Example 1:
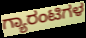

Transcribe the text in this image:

ಗ್ಯಾರಂಟಿಗಳ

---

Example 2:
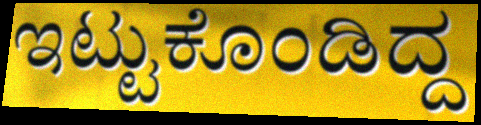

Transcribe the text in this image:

ಇಟ್ಟುಕೊಂಡಿದ್ದ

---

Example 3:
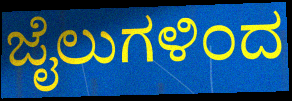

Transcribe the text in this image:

ಜೈಲುಗಳಿಂದ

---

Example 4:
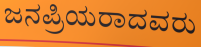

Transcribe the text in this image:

ಜನಪ್ರಿಯರಾದವರು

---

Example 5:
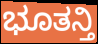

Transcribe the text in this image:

ಭೂತನ್ತಿ